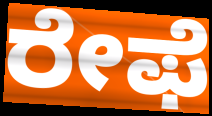
ರೇಫೆ